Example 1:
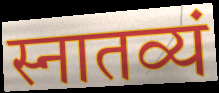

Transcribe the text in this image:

स्नातव्यं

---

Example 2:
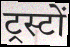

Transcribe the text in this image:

ट्रस्टों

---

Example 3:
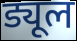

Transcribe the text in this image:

ड्यूल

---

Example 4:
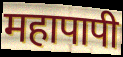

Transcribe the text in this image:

महापापी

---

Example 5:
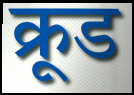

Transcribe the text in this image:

क्रूड